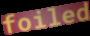
foiled